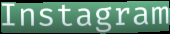
Instagram